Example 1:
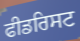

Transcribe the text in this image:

ਫੀਡਰਿਸਟ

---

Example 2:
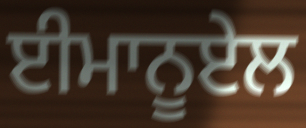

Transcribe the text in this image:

ਈਮਾਨੂਏਲ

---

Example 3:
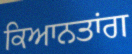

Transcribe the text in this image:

ਕਿਆਨਤਾਂਗ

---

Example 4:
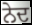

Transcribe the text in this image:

ਨੇਦ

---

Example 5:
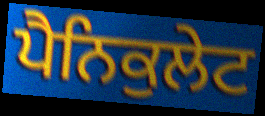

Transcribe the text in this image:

ਪੈਨਿਕੁਲੇਟ